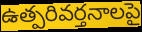
ఉత్పరివర్తనాలపై